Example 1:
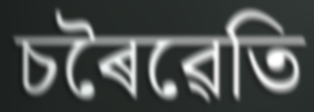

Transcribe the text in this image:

চৰৈৱেতি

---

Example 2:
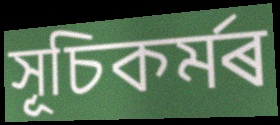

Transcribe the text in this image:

সূচিকৰ্মৰ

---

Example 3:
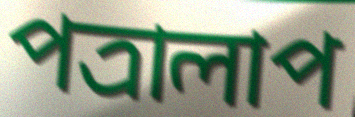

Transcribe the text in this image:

পত্ৰালাপ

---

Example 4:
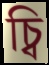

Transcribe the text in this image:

চ্বি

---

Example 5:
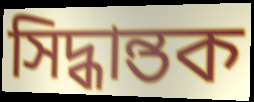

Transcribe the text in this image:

সিদ্ধান্তক